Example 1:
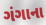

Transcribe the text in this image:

ગંગાના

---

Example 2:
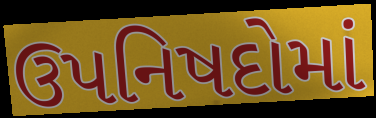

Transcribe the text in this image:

ઉપનિષદોમાં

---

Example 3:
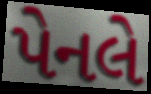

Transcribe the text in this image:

પેનલે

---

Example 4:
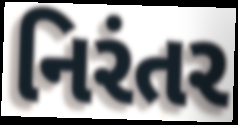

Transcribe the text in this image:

નિરંતર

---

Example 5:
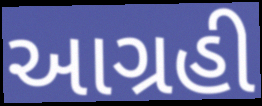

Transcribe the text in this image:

આગ્રહી